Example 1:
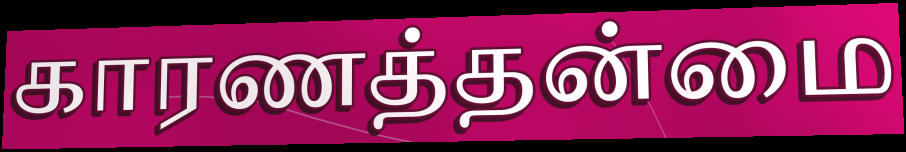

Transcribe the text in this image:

காரணத்தன்மை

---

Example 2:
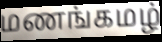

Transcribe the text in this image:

மணங்கமழ்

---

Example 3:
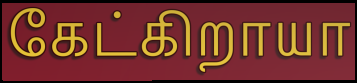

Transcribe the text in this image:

கேட்கிறாயா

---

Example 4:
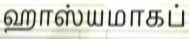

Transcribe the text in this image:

ஹாஸ்யமாகப்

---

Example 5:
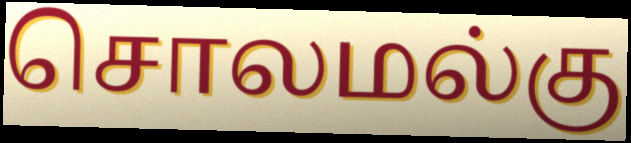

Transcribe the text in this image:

சொலமல்கு